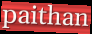
paithan